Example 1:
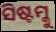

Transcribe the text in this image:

ସିଷ୍ଟମ୍କୁ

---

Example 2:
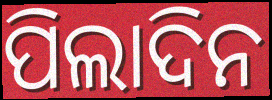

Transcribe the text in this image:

ପିଲାଦିନ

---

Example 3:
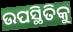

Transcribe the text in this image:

ଉପସ୍ଥିତିକୁ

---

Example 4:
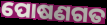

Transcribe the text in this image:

ପୋଷଣଗତ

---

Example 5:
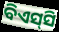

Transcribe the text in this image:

ବିଏସ୍‌ସି